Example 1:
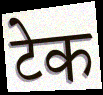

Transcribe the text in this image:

टेक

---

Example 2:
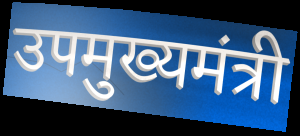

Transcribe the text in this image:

उपमुख्यमंत्री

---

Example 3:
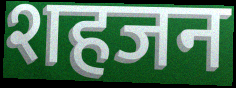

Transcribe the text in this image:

शहजन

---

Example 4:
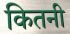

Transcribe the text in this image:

कितनी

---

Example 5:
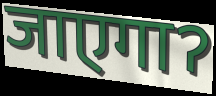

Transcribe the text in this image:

जाएगाॽ